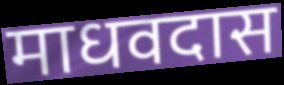
माधवदास